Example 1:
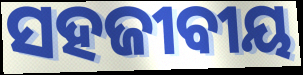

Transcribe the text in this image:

ସହଜୀବୀୟ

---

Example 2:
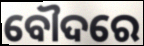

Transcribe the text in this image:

ବୌଦରେ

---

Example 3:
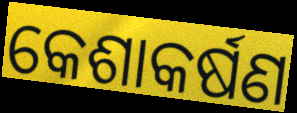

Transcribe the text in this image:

କେଶାକର୍ଷଣ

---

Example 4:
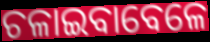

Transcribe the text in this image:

ଚଳାଇବାବେଳେ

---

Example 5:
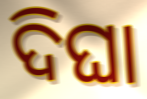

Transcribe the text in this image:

ଦିଘା